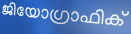
ജിയോഗ്രാഫിക്